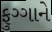
ફુગ્ગાને